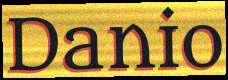
Danio